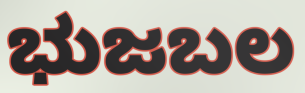
ಭುಜಬಲ